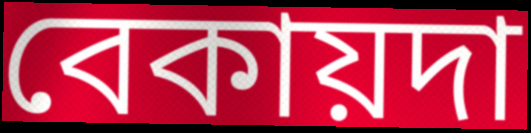
বেকায়দা